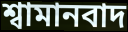
শ্বামানবাদ